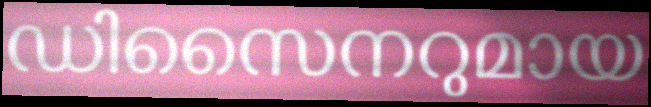
ഡിസൈനറുമായ